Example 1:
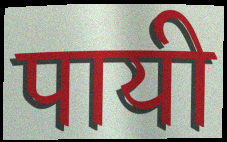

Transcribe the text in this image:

पायी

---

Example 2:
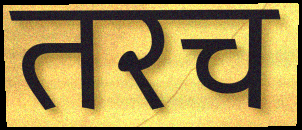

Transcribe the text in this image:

तरच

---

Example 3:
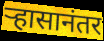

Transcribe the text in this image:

ऱ्हासानंतर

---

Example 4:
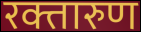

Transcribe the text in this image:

रक्तारुण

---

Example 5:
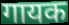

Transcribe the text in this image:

गायक